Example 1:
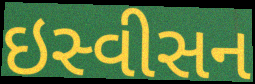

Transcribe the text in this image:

ઇસ્વીસન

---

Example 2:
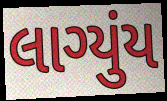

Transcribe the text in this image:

લાગ્યુંય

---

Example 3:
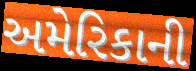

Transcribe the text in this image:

અમેરિકાની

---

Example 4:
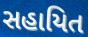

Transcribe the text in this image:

સહાયિત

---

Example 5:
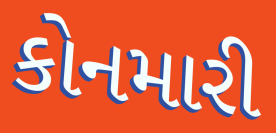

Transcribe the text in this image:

કોનમારી